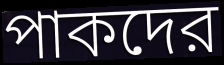
পাকদের